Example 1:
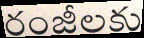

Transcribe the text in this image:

రంజీలకు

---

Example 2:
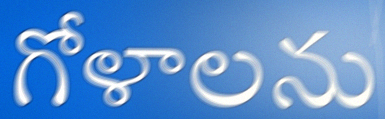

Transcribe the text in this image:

గోళాలను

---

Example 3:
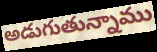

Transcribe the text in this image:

అడుగుతున్నాము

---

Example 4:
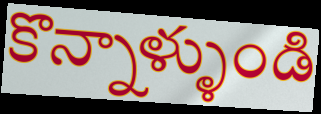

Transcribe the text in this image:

కొన్నాళ్ళుండి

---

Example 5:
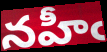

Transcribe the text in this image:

నహీఁ